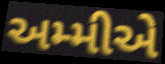
અમ્મીએ